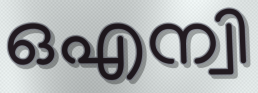
ഒഎന്വി